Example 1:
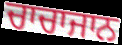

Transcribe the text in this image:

ਚਾਚਾਜਾਨ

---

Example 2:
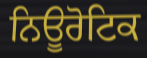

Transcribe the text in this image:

ਨਿਊਰੋਟਿਕ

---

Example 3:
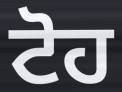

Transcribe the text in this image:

ਟੋਹ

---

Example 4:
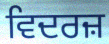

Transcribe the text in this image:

ਵਿਦਰਜ਼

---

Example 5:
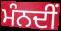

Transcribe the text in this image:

ਮੰਨਦੀਂ